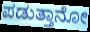
ಪಡುತ್ತಾನೋ